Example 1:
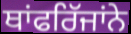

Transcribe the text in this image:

ਥਾਂਫਰਿੱਜਾਂਨੇ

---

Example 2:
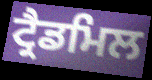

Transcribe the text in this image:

ਟ੍ਰੈਡਮਿਲ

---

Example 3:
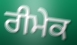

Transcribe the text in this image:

ਰੀਮੇਕ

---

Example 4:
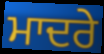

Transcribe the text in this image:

ਮਾਦਰੇ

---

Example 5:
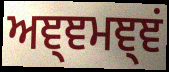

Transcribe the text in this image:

ਅਞ੍ਞਮਞ੍ਞਂ